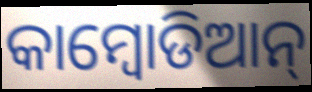
କାମ୍ବୋଡିଆନ୍